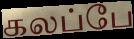
கலப்பே